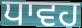
ਧਾਵਹ